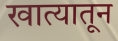
खात्यातून